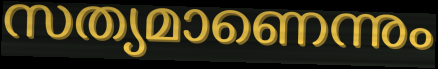
സത്യമാണെന്നും